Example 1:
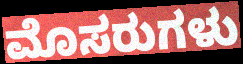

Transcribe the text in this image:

ಮೊಸರುಗಳು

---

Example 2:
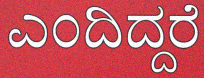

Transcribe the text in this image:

ಎಂದಿದ್ದರೆ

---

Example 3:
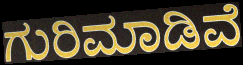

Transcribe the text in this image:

ಗುರಿಮಾಡಿವೆ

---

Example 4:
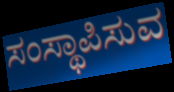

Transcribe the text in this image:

ಸಂಸ್ಥಾಪಿಸುವ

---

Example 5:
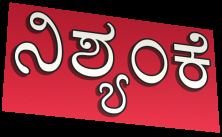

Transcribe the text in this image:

ನಿಶ್ಯಂಕೆ